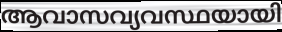
ആവാസവ്യവസ്ഥയായി